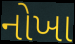
નોખા